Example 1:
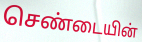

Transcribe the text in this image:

செண்டையின்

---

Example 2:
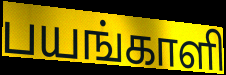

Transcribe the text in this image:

பயங்காளி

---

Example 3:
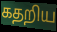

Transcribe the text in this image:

கதறிய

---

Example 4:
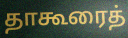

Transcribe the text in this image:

தாகூரைத்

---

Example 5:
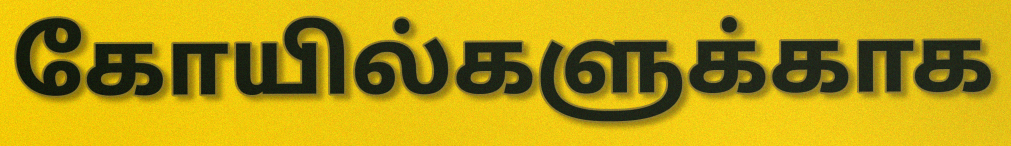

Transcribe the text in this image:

கோயில்களுக்காக